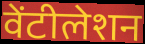
वेंटीलेशन